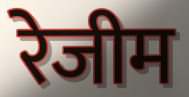
रेजीम